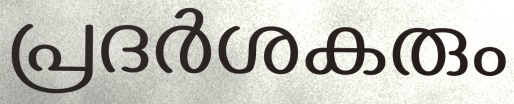
പ്രദർശകരും